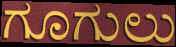
ಗೂಗುಲು